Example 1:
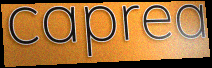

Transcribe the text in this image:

caprea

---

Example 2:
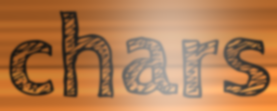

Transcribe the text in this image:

chars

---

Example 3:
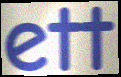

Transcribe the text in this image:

ett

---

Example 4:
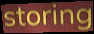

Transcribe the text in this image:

storing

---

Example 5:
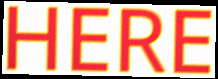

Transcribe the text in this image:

HERE